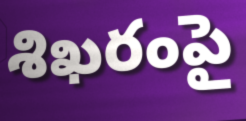
శిఖరంపై